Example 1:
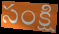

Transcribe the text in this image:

సంక్షి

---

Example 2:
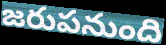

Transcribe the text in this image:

జరుపనుంది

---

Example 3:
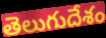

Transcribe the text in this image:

తెలుగుదేశం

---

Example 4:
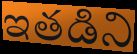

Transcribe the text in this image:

ఇతడిని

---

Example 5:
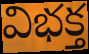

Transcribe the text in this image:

విభక్త